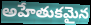
అహేతుకమైన